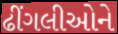
ઢીંગલીઓને